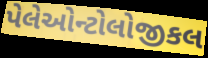
પેલેઓન્ટોલોજીકલ